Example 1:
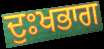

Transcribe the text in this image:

ਦੁਃਖਭਾਗ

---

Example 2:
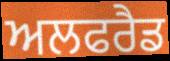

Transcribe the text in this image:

ਅਲਫਰੈਡ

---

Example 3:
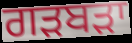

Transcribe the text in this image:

ਗੜਬੜਾ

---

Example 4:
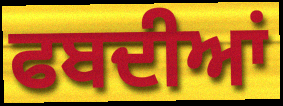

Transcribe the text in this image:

ਫਬਦੀਆਂ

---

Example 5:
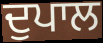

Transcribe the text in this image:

ਦੁਪਾਲ